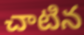
చాటిన